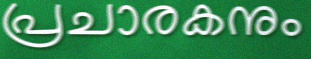
പ്രചാരകനും